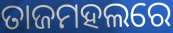
ତାଜମହଲରେ